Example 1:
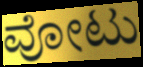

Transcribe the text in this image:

ವೋಟು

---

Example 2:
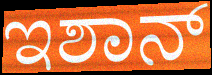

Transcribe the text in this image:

ಇಶಾನ್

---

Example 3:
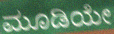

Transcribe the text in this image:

ಮೂಡಿಯೇ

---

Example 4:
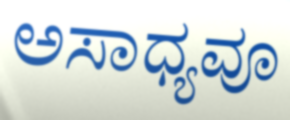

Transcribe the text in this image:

ಅಸಾಧ್ಯವೂ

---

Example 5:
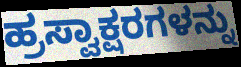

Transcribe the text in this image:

ಹ್ರಸ್ವಾಕ್ಷರಗಳನ್ನು